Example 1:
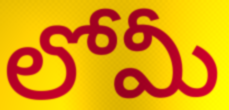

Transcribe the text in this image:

లోమీ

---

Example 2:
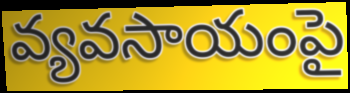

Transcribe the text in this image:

వ్యవసాయంపై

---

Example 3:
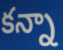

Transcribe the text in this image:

కన్నా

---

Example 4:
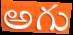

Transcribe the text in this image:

అగు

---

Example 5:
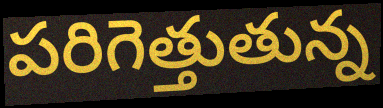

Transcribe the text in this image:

పరిగెత్తుతున్న